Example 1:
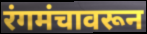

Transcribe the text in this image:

रंगमंचावरून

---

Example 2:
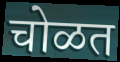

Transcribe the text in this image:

चोळत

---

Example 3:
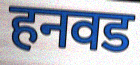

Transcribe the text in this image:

हनवड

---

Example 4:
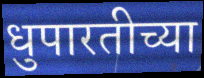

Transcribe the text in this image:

धुपारतीच्या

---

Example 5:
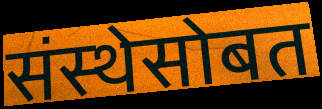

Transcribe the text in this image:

संस्थेसोबत